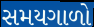
સમયગાળો